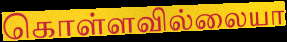
கொள்ளவில்லையா